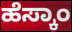
ಹೆಸ್ಕಾಂ